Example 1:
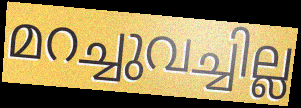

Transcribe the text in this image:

മറച്ചുവച്ചില്ല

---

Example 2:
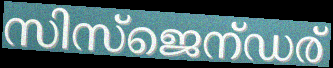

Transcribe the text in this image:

സിസ്ജെന്ഡര്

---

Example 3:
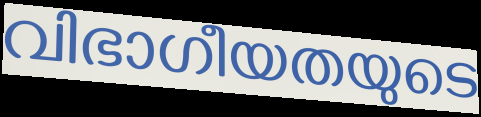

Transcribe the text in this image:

വിഭാഗീയതയുടെ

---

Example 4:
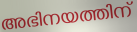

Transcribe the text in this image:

അഭിനയത്തിന്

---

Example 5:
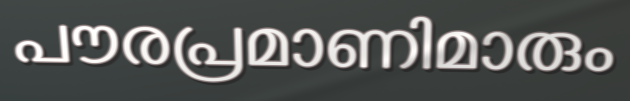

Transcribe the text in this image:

പൗരപ്രമാണിമാരും